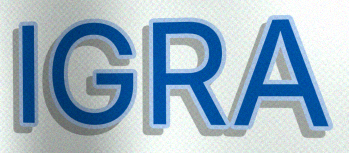
IGRA